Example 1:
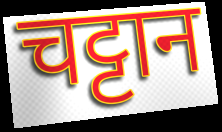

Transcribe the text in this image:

चट्टान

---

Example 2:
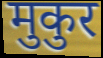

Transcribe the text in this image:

मुकुर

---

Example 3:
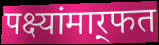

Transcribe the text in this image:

पक्ष्यांमार्फत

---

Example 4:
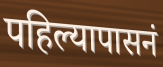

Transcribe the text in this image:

पहिल्यापासनं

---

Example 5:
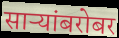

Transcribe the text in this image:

साऱ्यांबरोबर